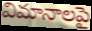
విమానాలపై